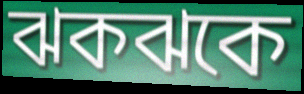
ঝকঝকে